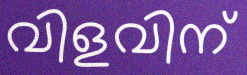
വിളവിന്